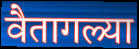
वैतागल्या